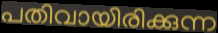
പതിവായിരിക്കുന്ന